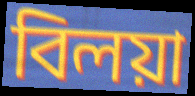
বিলয়া